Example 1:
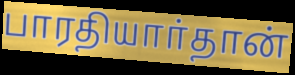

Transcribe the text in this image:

பாரதியார்தான்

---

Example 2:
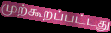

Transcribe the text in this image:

முற்கூறப்பட்டது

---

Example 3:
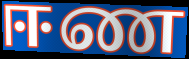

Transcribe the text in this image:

ஈண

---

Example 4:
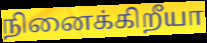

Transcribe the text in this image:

நினைக்கிறீயா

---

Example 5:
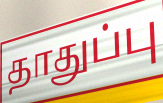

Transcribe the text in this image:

தாதுப்பு